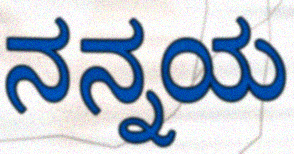
ನನ್ನಯ